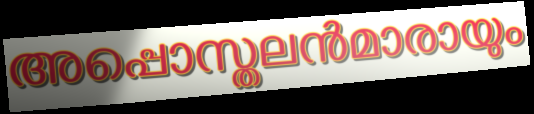
അപ്പൊസ്തലൻമാരായും